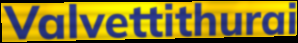
Valvettithurai